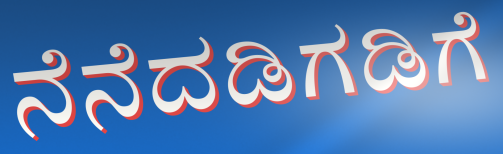
ನೆನೆದಡಿಗಡಿಗೆ